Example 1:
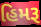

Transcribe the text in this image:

હિમરૂ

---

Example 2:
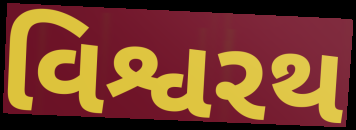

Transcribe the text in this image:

વિશ્વરથ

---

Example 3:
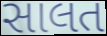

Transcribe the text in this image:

સાલત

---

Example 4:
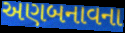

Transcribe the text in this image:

અણબનાવના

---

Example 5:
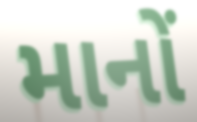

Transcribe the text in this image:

માનોં